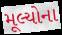
મૂલ્‍યોના